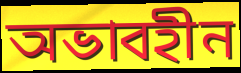
অভাবহীন